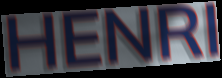
HENRI